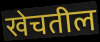
खेचतील